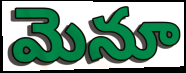
మెనూ